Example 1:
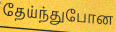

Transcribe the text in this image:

தேய்ந்துபோன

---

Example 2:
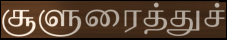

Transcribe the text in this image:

சூளுரைத்துச்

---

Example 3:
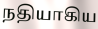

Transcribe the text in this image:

நதியாகிய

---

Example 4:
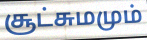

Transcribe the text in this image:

சூட்சுமமும்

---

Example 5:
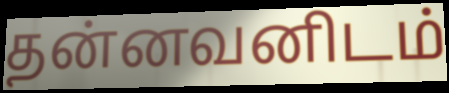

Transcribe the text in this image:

தன்னவனிடம்